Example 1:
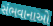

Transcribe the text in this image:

સંભવાનાઓ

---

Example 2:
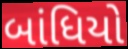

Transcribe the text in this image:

બાંધિયો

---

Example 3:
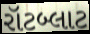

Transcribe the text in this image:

રૉટબ્લાટ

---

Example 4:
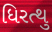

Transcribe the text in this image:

ધિરત્થુ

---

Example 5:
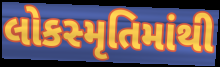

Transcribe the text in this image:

લોકસ્મૃતિમાંથી